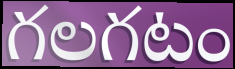
గలగటం